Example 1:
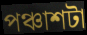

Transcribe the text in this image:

পঞ্চাশটা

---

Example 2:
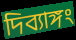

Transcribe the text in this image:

দিব্যাঙ্গং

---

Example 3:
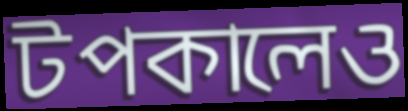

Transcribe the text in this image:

টপকালেও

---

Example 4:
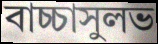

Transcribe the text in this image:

বাচ্চাসুলভ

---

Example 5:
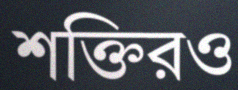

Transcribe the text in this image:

শক্তিরও